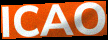
ICAO